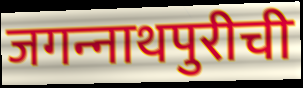
जगन्नाथपुरीची